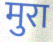
मुरा